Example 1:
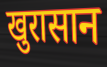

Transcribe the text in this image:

खुरासान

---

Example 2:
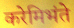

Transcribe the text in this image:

करेमिभंते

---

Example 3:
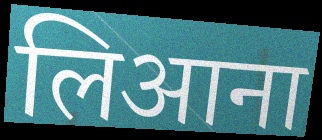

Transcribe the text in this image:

लिआना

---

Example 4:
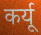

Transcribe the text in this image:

कर्यू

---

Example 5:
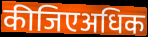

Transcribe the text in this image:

कीजिएअधिक